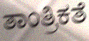
ತಾಂತ್ರಿಕತೆ